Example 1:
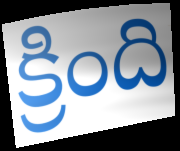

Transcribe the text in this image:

క్రింది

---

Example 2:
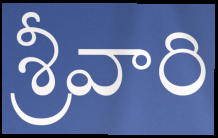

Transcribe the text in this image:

శ్రీవారి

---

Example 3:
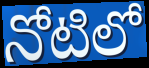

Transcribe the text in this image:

నోటిలో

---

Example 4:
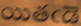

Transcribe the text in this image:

యితఁడె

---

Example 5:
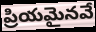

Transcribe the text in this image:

ప్రియమైనవే